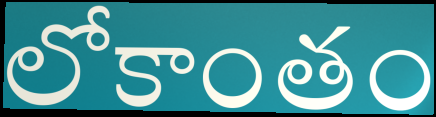
లోకాంతం